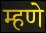
म्हणे